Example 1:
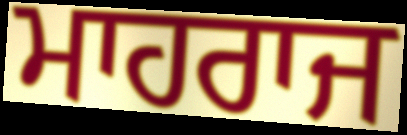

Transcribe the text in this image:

ਮਾਹਰਾਜ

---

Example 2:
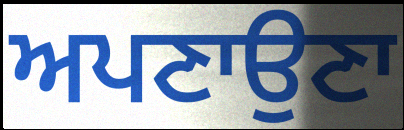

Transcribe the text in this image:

ਅਪਣਾਉਣਾ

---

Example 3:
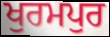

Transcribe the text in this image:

ਖੁਰਮਪੁਰ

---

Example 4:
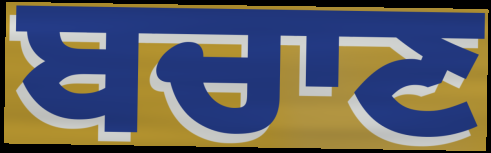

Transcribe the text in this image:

ਬਚਾਣ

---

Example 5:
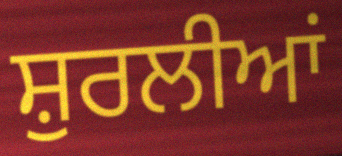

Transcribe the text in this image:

ਸ਼ੁਰਲੀਆਂ